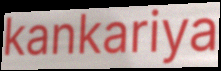
kankariya